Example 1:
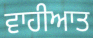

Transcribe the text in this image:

ਵਾਹੀਆਤ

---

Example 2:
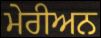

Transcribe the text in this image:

ਮੇਰੀਅਨ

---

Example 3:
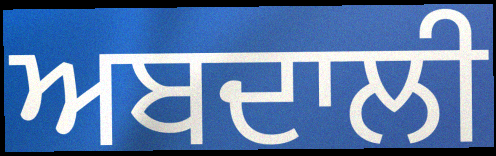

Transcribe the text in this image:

ਅਬਦਾਲੀ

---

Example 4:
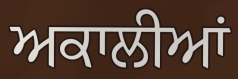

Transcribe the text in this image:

ਅਕਾਲੀਆਂ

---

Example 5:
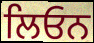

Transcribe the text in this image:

ਲਿਓਨ